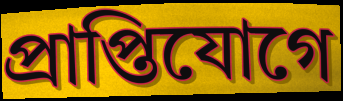
প্রাপ্তিযোগে